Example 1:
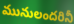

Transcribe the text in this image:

మునులందరినీ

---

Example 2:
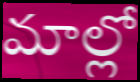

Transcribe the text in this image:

మాల్లో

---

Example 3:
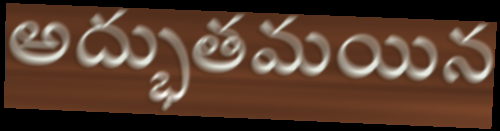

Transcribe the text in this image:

అద్భుతమయిన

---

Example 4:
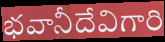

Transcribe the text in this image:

భవానీదేవిగారి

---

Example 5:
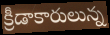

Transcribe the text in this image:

క్రీడాకారులున్న